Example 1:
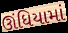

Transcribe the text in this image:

ઊંધિયામાં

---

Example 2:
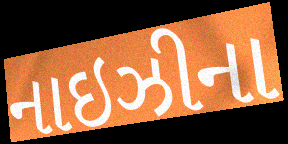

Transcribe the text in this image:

નાઇઝીના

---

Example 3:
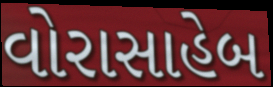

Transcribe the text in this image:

વોરાસાહેબ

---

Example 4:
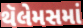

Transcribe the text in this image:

થૅલેમસમાં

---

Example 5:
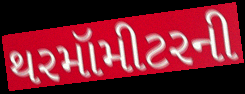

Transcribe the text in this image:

થરમૉમીટરની